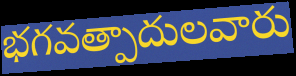
భగవత్పాదులవారు